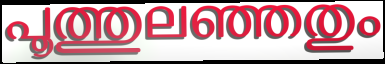
പൂത്തുലഞ്ഞതും